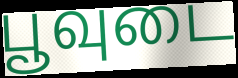
பூவுடை